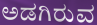
ಅಡಗಿರುವ